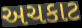
અચકાટ